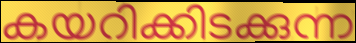
കയറിക്കിടക്കുന്ന